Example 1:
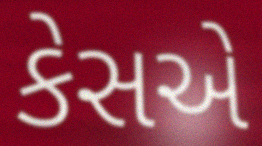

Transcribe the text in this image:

કેસએ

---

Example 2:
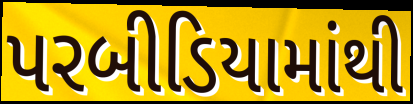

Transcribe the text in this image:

પરબીડિયામાંથી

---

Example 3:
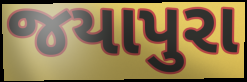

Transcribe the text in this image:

જયાપુરા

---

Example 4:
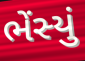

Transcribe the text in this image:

ભેંસ્યું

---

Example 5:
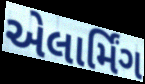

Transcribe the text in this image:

એલાર્મિંગ